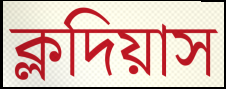
ক্লদিয়াস